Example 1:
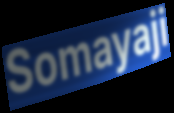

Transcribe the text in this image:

Somayaji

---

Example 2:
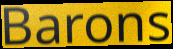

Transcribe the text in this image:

Barons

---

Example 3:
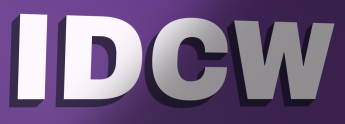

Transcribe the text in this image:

IDCW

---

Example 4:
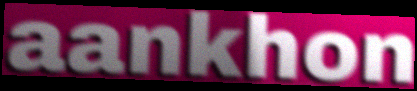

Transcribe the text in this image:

aankhon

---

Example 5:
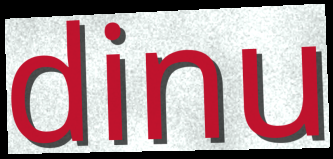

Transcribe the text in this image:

dinu